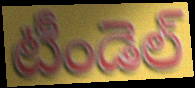
టీండెల్